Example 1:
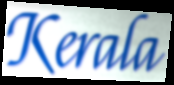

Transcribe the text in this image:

Kerala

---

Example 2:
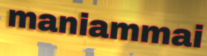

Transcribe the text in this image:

maniammai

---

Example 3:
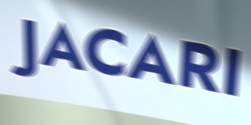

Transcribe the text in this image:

JACARI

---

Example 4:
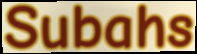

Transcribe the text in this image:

Subahs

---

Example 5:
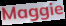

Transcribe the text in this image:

Maggie